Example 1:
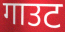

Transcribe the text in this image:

गाउट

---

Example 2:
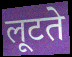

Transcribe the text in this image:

लूटते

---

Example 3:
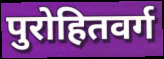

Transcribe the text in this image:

पुरोहितवर्ग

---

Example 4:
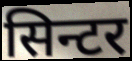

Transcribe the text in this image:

सिन्टर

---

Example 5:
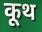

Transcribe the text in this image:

कूथ